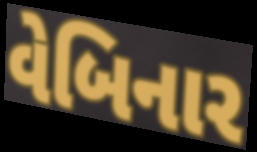
વેબિનાર